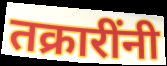
तक्रारींनी